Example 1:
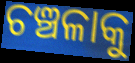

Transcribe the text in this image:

ଚଞ୍ଚଳାକୁ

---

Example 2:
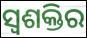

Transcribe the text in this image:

ସ୍ଵଶକ୍ତିର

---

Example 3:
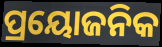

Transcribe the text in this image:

ପ୍ରୟୋଜନିକ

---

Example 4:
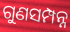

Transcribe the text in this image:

ଗୁଣସମ୍ପନ୍ନ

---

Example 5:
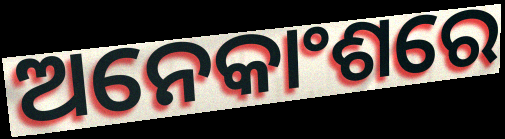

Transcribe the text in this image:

ଅନେକାଂଶରେ